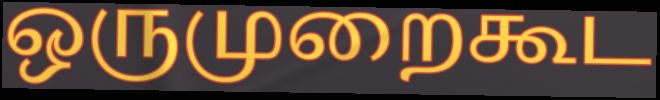
ஒருமுறைகூட